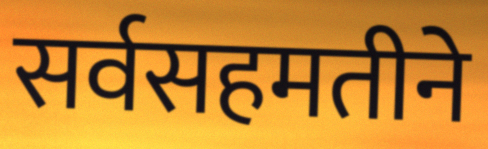
सर्वसहमतीने